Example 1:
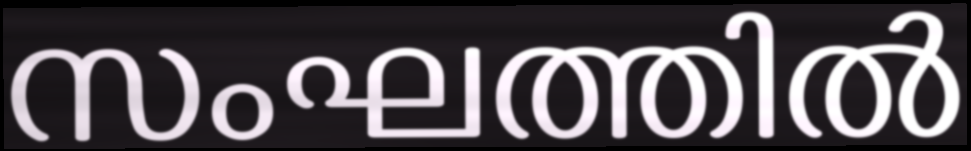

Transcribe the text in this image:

സംഘത്തിൽ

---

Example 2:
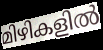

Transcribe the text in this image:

മിഴികളിൽ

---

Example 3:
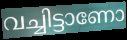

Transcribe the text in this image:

വച്ചിട്ടാണോ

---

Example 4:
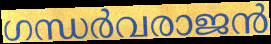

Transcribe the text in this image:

ഗന്ധർവരാജൻ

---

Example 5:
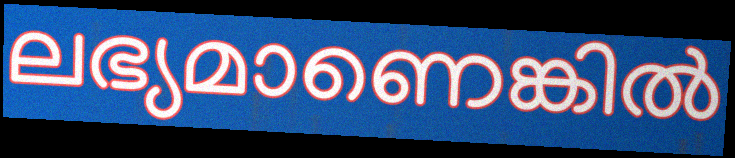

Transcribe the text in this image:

ലഭ്യമാണെങ്കിൽ